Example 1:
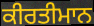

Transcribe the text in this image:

ਕੀਰਤੀਮਾਨ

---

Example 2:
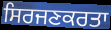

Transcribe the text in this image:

ਸਿਰਜਣਕਰਤਾ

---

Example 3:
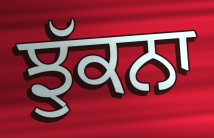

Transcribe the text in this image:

ਝੁੱਕਨਾ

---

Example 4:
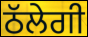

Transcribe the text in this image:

ਠੱਲੇਗੀ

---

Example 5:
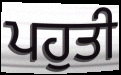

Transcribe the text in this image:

ਪਹੁਤੀ